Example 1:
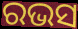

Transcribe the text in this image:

ରଭସ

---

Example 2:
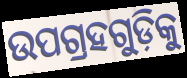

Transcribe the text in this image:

ଉପଗ୍ରହଗୁଡ଼ିକୁ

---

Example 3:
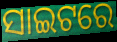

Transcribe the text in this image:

ସାଇଟରେ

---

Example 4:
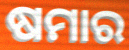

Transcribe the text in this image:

ଷମାର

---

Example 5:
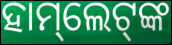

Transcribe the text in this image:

ହାମ୍‌ଲେଟ୍‌ଙ୍କ